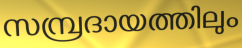
സമ്പ്രദായത്തിലും